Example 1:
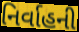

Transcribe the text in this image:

નિર્વાહની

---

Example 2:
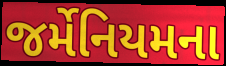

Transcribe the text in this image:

જર્મેનિયમના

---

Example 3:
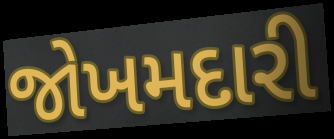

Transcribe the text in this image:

જોખમદારી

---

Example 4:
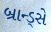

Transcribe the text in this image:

બ્રાન્ડ્સે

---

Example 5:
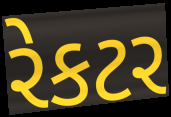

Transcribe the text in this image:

રેકટર